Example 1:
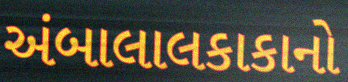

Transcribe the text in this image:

અંબાલાલકાકાનો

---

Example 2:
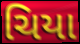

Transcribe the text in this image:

ચિયા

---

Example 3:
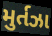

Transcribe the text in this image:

મુર્તઝા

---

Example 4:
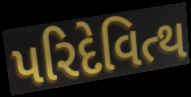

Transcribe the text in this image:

પરિદેવિત્થ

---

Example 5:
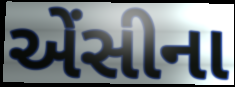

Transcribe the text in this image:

એંસીના